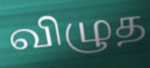
விழுத